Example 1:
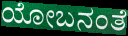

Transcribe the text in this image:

ಯೋಬನಂತೆ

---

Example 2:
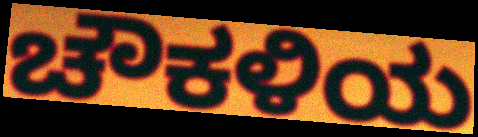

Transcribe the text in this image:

ಚೌಕಳಿಯ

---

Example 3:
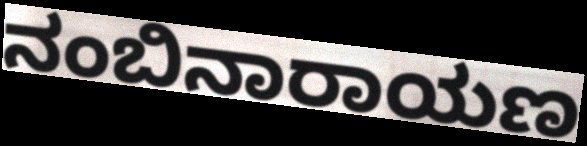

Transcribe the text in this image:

ನಂಬಿನಾರಾಯಣ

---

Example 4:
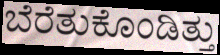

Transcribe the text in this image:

ಬೆರೆತುಕೊಂಡಿತ್ತು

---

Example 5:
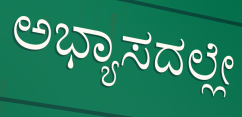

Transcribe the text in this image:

ಅಭ್ಯಾಸದಲ್ಲೇ